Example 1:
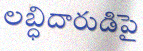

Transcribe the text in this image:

లబ్ధిదారుడిపై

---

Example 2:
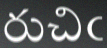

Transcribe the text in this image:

రుచిఁ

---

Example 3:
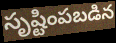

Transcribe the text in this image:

సృష్టింపబడిన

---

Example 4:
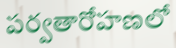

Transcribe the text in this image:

పర్వతారోహణలో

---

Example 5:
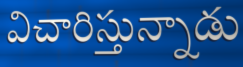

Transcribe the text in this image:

విచారిస్తున్నాడు